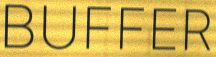
BUFFER